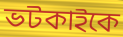
ভটকাইকে